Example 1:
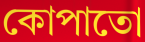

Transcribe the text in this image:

কোপাতো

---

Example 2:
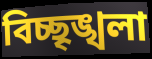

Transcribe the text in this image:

বিচ্ছৃঙ্খলা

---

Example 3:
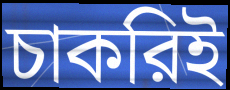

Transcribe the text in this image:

চাকরিই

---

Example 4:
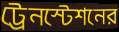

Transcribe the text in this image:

ট্রেনস্টেশনের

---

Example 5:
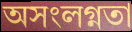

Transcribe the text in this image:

অসংলগ্নতা